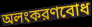
অলংকরণবোধ